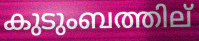
കുടുംബത്തില്